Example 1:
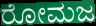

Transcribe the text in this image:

ರೋಮಜ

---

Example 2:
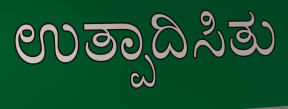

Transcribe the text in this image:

ಉತ್ಪಾದಿಸಿತು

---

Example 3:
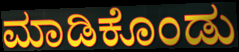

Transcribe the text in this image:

ಮಾಡಿಕೊಂಡು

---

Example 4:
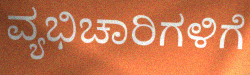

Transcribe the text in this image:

ವ್ಯಭಿಚಾರಿಗಳಿಗೆ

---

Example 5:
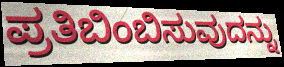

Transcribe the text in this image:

ಪ್ರತಿಬಿಂಬಿಸುವುದನ್ನು